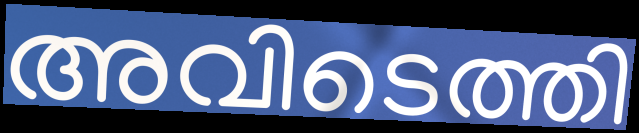
അവിടെത്തി